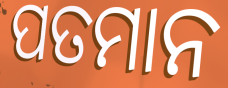
ପତମାନ